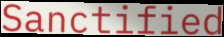
Sanctified